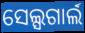
ସେଲ୍ସଗାର୍ଲ